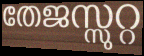
തേജസ്സുറ്റ